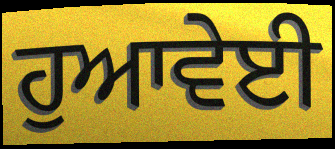
ਹੁਆਵੇਈ